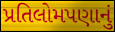
પ્રતિલોમપણાનું